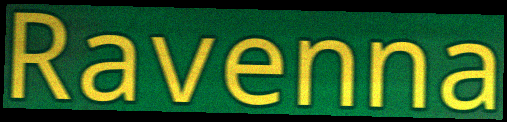
Ravenna